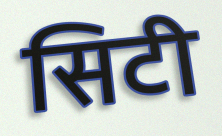
सिटी